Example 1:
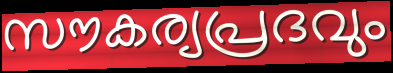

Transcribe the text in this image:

സൗകര്യപ്രദവും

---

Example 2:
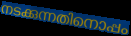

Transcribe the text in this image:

നടക്കുന്നതിനൊപ്പം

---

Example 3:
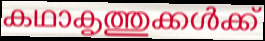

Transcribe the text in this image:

കഥാകൃത്തുക്കൾക്ക്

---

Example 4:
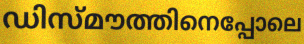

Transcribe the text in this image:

ഡിസ്മൗത്തിനെപ്പോലെ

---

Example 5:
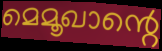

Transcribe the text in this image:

മെമൂഖാന്റെ